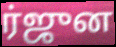
ர்ஜுன